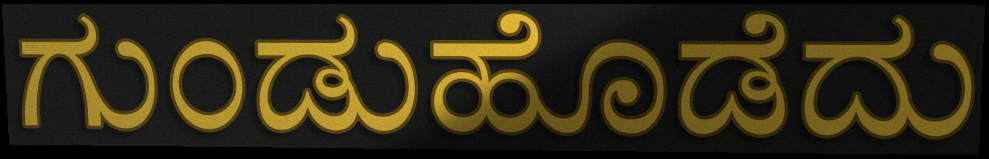
ಗುಂಡುಹೊಡೆದು